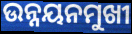
ଉନ୍ନୟନମୁଖୀ